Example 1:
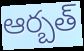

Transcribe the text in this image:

ఆర్బత్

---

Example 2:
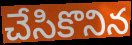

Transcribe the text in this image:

చేసికొనిన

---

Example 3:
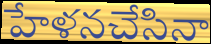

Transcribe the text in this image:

హేళనచేసినా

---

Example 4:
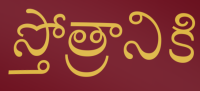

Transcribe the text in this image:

స్తోత్రానికి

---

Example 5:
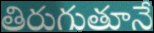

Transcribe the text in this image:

తిరుగుతూనే